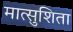
मात्सुशिता